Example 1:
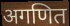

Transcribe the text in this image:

अगणित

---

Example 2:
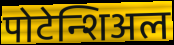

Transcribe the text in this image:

पोटेन्शिअल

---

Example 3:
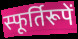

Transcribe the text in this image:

स्फूर्तिरूपें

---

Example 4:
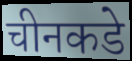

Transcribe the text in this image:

चीनकडे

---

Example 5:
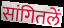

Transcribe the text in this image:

सांगितलें